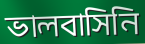
ভালবাসিনি